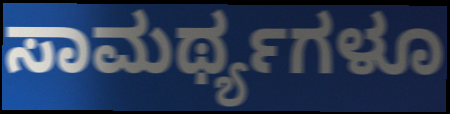
ಸಾಮರ್ಥ್ಯಗಳೂ